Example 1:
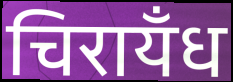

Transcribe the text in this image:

चिरायँध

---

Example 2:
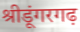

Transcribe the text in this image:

श्रीडूंगरगढ़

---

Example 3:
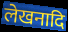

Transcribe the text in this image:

लेखनादि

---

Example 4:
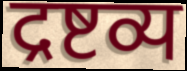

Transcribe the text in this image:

द्रष्टव्य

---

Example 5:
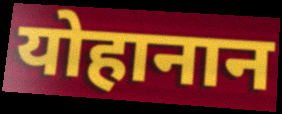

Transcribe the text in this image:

योहानान